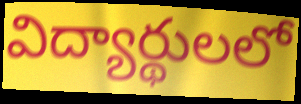
విద్యార్థులలో